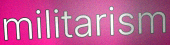
militarism